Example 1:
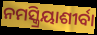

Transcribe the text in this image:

ନମସ୍କ୍ରିୟାଶୀର୍ବା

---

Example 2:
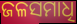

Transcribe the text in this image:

ଜଳସମାଧି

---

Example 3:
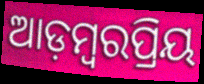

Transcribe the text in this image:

ଆଡ଼ମ୍ବରପ୍ରିୟ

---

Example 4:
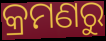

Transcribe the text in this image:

କ୍ରମଣରୁ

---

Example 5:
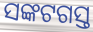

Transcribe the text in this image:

ସଙ୍କଟଗସ୍ତ